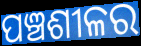
ପଞ୍ଚଶୀଳର